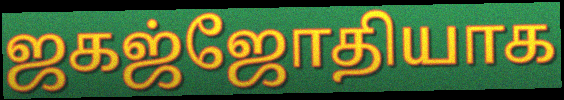
ஜகஜ்ஜோதியாக